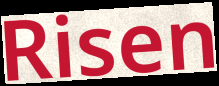
Risen